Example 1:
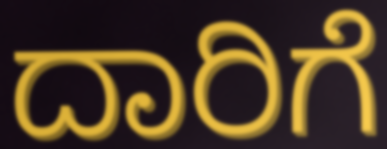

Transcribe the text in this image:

ದಾರಿಗೆ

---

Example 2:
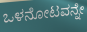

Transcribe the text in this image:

ಒಳನೋಟವನ್ನೇ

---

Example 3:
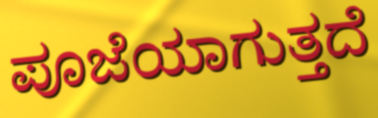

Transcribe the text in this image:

ಪೂಜೆಯಾಗುತ್ತದೆ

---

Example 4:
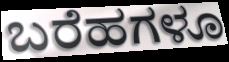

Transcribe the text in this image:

ಬರೆಹಗಳೂ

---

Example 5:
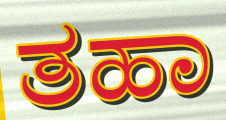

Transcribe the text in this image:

ತಹಾ